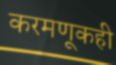
करमणूकही